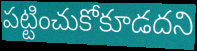
పట్టించుకోకూడదని